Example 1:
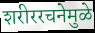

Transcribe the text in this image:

शरीररचनेमुळे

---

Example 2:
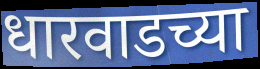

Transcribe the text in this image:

धारवाडच्या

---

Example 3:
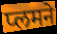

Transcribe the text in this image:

प्लमने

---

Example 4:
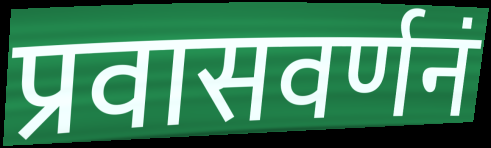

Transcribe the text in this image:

प्रवासवर्णनं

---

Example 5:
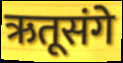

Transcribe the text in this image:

ऋतूसंगे